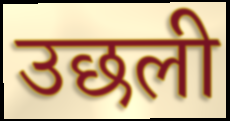
उछली